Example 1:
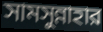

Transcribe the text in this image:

সামসুন্নাহার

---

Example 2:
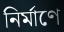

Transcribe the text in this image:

নির্মাণে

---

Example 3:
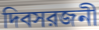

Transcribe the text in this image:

দিবসরজনী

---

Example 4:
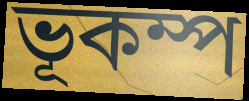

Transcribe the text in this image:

ভূকম্প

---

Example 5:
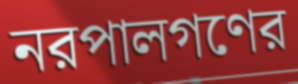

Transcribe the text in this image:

নরপালগণের